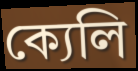
ক্যেলি